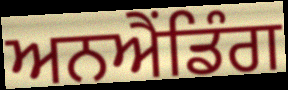
ਅਨਐਂਡਿੰਗ